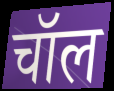
चॉल